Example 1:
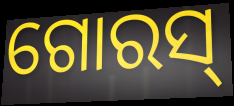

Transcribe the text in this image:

ଗୋରସ୍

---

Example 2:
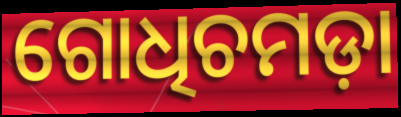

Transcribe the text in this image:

ଗୋଧିଚମଡ଼ା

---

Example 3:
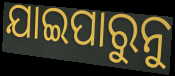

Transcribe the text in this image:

ଯାଇପାରୁନୁ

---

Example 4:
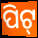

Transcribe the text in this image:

ପିଟ୍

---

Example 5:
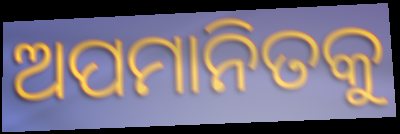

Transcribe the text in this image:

ଅପମାନିତକୁ